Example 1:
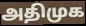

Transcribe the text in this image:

அதிமுக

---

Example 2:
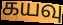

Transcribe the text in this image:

கயவு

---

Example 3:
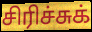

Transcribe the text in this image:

சிரிச்சுக்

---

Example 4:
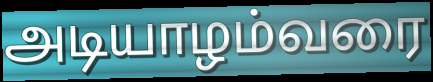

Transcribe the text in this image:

அடியாழம்வரை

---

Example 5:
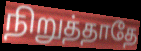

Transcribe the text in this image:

நிறுத்தாதே